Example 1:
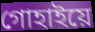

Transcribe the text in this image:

গোহাইয়ে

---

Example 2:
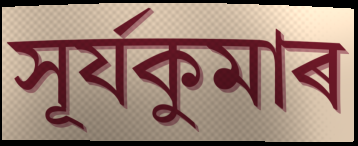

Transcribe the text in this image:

সূৰ্যকুমাৰ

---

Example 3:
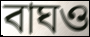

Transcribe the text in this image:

বাঘও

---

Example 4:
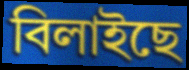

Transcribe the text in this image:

বিলাইছে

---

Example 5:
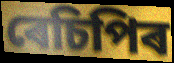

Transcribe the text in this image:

ৰেচিপিৰ